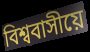
বিশ্ববাসীয়ে